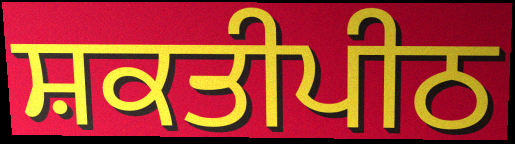
ਸ਼ਕਤੀਪੀਠ